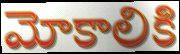
మోకాలికి